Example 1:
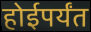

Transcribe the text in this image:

होईपर्यंत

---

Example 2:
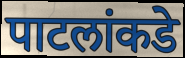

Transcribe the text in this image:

पाटलांकडे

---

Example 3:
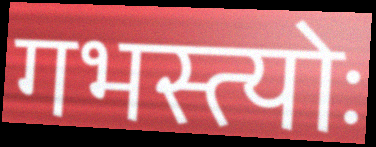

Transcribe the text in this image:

गभस्त्योः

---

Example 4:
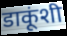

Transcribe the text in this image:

डाकूंशी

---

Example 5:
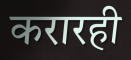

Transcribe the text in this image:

करारही